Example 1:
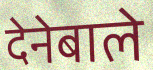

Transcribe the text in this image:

देनेबाले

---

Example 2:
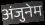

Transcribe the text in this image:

अंजुनेम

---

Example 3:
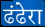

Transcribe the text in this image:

ढंढेरा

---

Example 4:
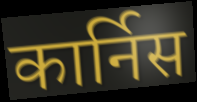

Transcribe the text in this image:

कार्निस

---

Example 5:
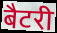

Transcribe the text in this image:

बैटरी